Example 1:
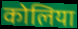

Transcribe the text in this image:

कोलिया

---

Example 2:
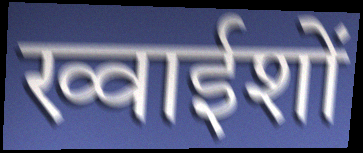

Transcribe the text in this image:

ख्वाईशों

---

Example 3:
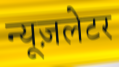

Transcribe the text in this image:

न्यूज़लेटर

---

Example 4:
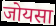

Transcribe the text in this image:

जोयसा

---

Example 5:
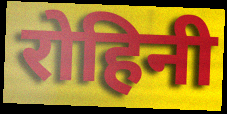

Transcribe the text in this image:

रोहिनी